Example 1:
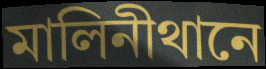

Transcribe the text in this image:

মালিনীথানে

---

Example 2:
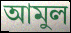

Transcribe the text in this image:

আমুল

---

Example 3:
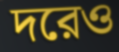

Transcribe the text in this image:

দরেও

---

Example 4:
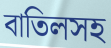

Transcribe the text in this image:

বাতিলসহ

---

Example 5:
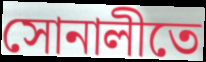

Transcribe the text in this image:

সোনালীতে